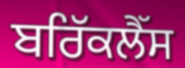
ਬਰਿੱਕਲੈੱਸ